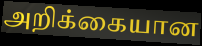
அறிக்கையான